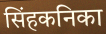
सिंहकनिका